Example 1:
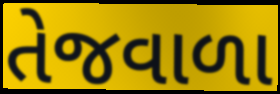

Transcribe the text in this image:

તેજવાળા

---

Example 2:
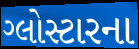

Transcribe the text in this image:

ગ્લોસ્ટારના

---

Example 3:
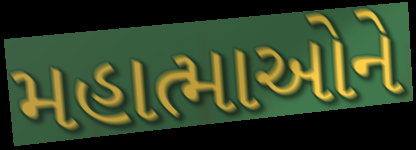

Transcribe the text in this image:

મહાત્માઓને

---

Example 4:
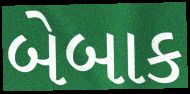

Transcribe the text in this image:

બેબાક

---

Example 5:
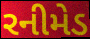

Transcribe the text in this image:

રનીમેડ